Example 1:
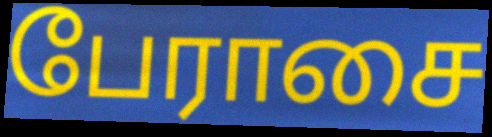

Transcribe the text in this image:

பேராசை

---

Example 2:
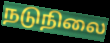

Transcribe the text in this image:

நடுநிலை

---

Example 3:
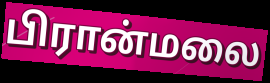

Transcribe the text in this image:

பிரான்மலை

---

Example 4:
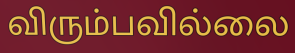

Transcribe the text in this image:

விரும்பவில்லை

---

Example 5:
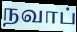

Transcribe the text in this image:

நவாப்